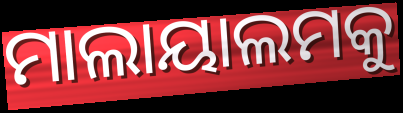
ମାଲାୟାଲମକୁ